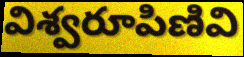
విశ్వరూపిణివి